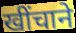
खींचाने